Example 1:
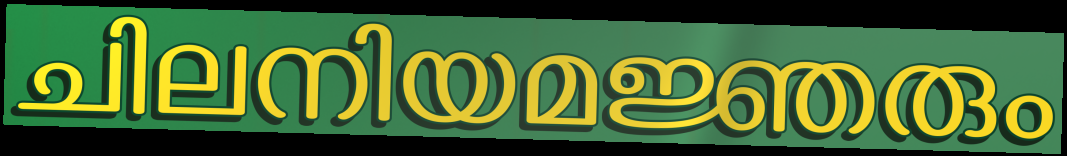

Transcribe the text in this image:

ചിലനിയമജ്ഞരും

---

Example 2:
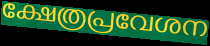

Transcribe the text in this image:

ക്ഷേത്രപ്രവേശന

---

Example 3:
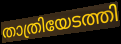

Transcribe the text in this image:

താത്രിയേടത്തി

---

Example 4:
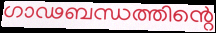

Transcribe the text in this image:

ഗാഢബന്ധത്തിന്റെ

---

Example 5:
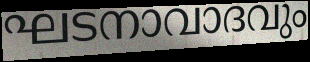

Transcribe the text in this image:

ഘടനാവാദവും